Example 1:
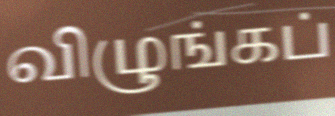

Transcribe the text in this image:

விழுங்கப்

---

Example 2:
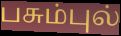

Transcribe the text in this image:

பசும்புல்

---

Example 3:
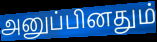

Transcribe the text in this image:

அனுப்பினதும்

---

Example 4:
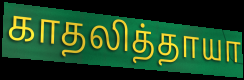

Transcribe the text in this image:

காதலித்தாயா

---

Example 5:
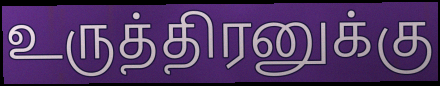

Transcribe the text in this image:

உருத்திரனுக்கு